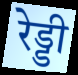
रेड्डी